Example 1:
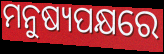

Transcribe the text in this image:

ମନୁଷ୍ୟପକ୍ଷରେ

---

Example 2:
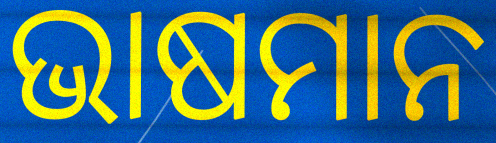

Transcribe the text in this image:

ଭାଷମାନ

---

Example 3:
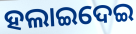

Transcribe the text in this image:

ହଲାଇଦେଇ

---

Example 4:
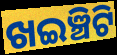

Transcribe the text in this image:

ଖଇଞ୍ଚିଟି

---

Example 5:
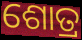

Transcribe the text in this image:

ଶୋତ୍ର